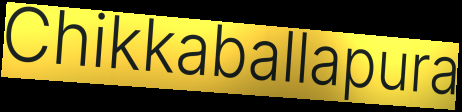
Chikkaballapura